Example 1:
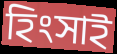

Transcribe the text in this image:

হিংসাই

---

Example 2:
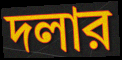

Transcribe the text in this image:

দলার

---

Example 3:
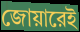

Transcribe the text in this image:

জোয়ারেই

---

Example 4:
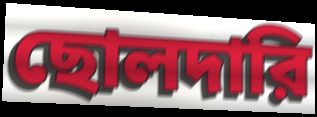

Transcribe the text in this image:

ছোলদারি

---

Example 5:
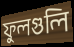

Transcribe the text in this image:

ফুলগুলি